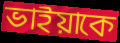
ভাইয়াকে